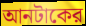
আনটাকের